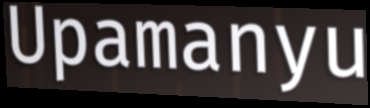
Upamanyu